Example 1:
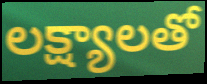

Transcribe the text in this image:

లక్ష్యాలతో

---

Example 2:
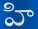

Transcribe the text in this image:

హి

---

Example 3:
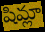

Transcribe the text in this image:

షిమ్లా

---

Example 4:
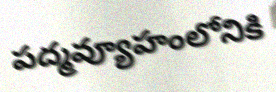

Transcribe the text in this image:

పద్మవ్యూహంలోనికి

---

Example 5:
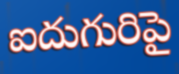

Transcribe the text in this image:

ఐదుగురిపై